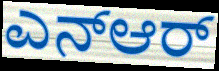
ಎನ್ಆರ್